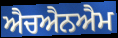
ਐਚਐਨਐਮ